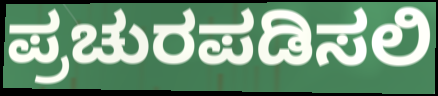
ಪ್ರಚುರಪಡಿಸಲಿ